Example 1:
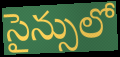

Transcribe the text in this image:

సైన్సులో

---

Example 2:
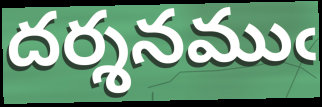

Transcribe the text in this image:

దర్శనముఁ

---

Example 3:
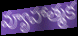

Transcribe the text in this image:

వ్యూహాత్మక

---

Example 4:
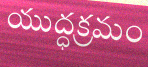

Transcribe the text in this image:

యుద్ధక్రమం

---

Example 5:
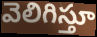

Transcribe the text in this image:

వెలిగిస్తూ